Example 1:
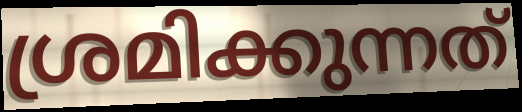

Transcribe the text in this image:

ശ്രമിക്കുന്നത്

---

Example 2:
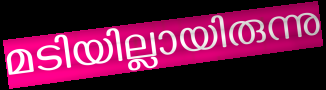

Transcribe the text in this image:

മടിയില്ലായിരുന്നു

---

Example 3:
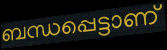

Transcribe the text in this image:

ബന്ധപ്പെട്ടാണ്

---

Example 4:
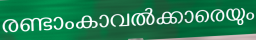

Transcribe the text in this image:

രണ്ടാംകാവൽക്കാരെയും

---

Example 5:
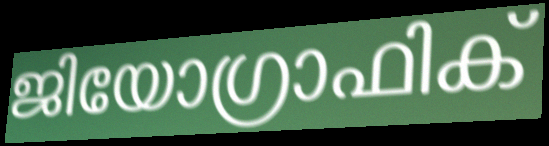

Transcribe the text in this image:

ജിയോഗ്രാഫിക്